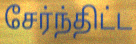
சேர்ந்திட்ட